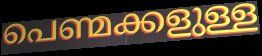
പെണ്മക്കളുള്ള